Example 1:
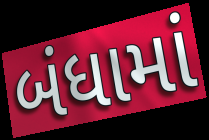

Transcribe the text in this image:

બંધામાં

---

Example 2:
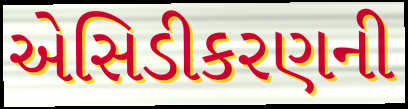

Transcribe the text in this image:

એસિડીકરણની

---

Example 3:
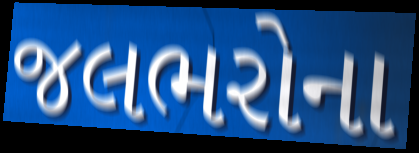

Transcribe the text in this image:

જલભરોના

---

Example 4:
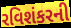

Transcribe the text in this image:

રવિશંકરની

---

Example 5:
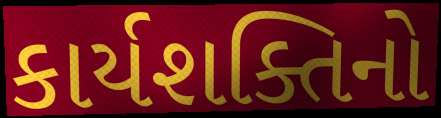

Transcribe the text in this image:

કાર્યશક્તિનો